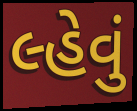
લ્હેવું